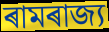
ৰামৰাজ্য